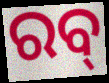
ରବ୍